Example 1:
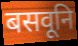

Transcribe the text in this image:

बसवूनि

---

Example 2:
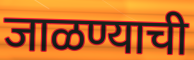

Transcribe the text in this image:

जाळण्याची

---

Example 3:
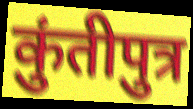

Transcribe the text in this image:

कुंतीपुत्र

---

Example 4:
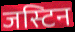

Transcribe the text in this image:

जस्टिन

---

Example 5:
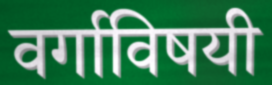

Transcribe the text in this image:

वर्गाविषयी